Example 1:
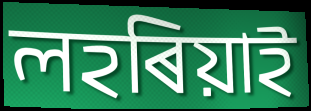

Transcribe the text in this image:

লহৰিয়াই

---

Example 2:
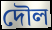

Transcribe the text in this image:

দৌল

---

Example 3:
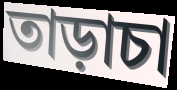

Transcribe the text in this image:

তাড়াচা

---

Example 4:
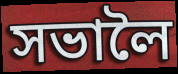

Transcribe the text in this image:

সভালৈ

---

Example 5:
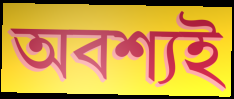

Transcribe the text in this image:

অবশ্যই